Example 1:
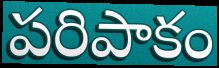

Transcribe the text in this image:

పరిపాకం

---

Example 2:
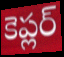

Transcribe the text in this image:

కెప్లర్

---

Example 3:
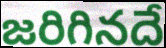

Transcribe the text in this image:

జరిగినదే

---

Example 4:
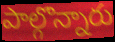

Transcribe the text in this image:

పాల్గొన్నారు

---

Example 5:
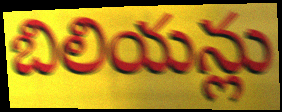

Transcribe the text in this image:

బిలియన్లు